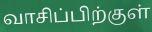
வாசிப்பிற்குள்